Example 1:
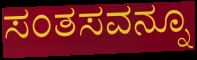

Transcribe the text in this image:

ಸಂತಸವನ್ನೂ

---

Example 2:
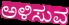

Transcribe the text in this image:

ಅಳಿಸುವ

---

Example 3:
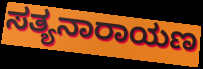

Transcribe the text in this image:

ಸತ್ಯನಾರಾಯಣ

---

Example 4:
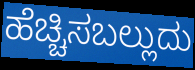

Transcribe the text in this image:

ಹೆಚ್ಚಿಸಬಲ್ಲುದು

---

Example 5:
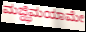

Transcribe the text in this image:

ಮಜ್ಝಿಮಯಾಮೇ